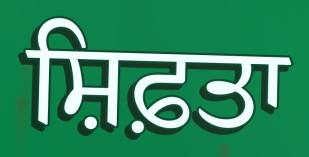
ਸ਼ਿਫ਼ਤਾ